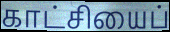
காட்சியைப்